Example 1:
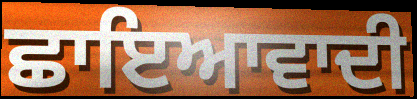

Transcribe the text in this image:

ਛਾਇਆਵਾਦੀ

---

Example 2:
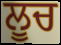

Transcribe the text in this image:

ਲੂਚ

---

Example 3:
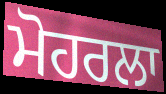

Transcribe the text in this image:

ਮੋਹਰਲਾ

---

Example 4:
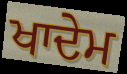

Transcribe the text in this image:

ਖਾਦੇਮ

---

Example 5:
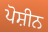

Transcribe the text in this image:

ਪੋਸ਼ੀਨ